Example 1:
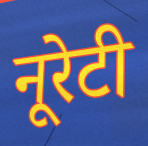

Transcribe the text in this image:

नूरेटी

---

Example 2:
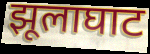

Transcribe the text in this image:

झूलाघाट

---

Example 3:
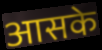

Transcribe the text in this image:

आसके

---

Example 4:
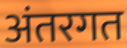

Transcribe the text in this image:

अंतरगत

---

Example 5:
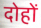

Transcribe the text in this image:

दोहों